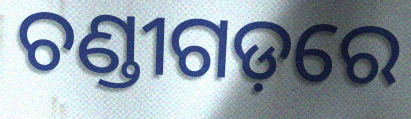
ଚଣ୍ଡୀଗଡ଼ରେ